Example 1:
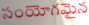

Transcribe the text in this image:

సంయోగమైన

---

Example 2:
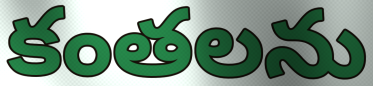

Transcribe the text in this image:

కంతలను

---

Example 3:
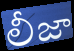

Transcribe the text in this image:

లీజా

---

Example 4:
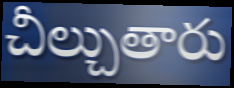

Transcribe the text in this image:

చీల్చుతారు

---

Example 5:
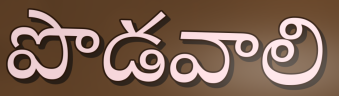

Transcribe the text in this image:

పొడవాలి